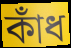
কাঁধ